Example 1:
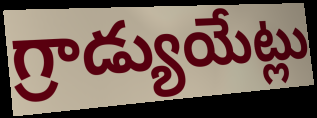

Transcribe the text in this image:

గ్రాడ్యుయేట్లు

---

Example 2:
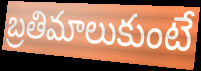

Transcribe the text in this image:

బ్రతిమాలుకుంటే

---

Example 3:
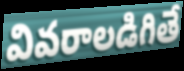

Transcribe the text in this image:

వివరాలడిగితే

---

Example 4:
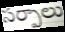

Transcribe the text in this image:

సర్పాలు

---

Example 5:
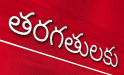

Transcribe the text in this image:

తరగతులకు